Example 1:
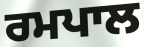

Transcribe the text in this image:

ਰਮਪਾਲ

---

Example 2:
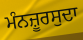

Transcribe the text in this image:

ਮੰਨਜ਼ੂਰਸੁਦਾ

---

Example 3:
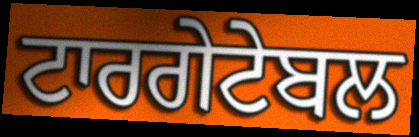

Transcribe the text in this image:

ਟਾਰਗੇਟੇਬਲ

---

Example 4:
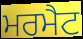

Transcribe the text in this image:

ਮਰਮੈਟ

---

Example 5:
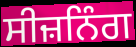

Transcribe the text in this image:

ਸੀਜ਼ਨਿੰਗ